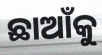
ଛାଆଁକୁ